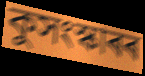
কুসংস্কাৰৰ